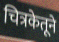
चित्रकेतूने